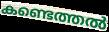
കണ്ടെത്തൽ